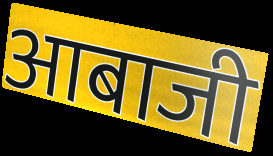
आबाजी